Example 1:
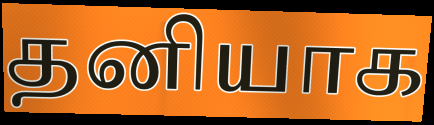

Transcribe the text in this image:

தனியாக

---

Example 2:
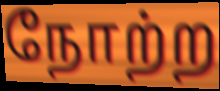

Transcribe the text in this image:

நோற்ற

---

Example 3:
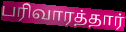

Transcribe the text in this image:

பரிவாரத்தார்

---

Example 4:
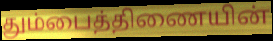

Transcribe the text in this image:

தும்பைத்திணையின்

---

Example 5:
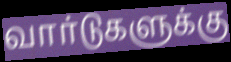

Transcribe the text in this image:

வார்டுகளுக்கு